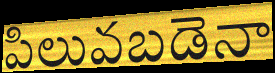
పిలువబడెనా